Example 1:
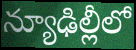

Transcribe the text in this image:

న్యూఢిల్లీలో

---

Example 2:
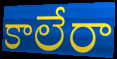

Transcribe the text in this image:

కాలేరా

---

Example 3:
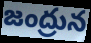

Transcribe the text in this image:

జంద్రున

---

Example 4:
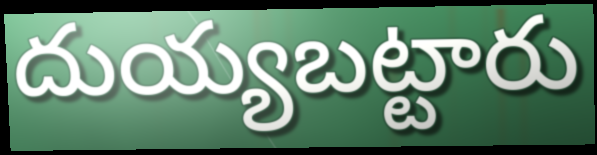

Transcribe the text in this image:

దుయ్యబట్టారు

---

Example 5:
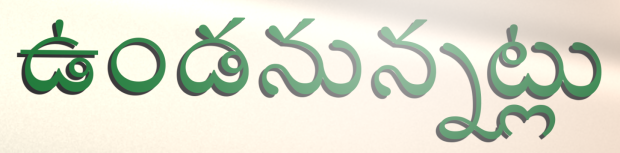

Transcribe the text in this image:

ఉండనున్నట్లు